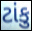
ટાંકુ